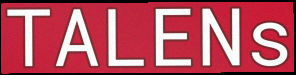
TALENs